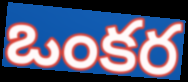
ఒంకర